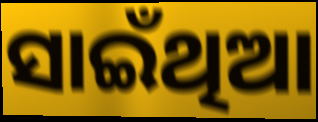
ସାଇଁଥିଆ